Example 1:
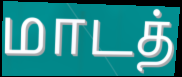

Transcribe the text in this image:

மாடத்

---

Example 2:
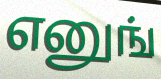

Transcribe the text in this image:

எனுங்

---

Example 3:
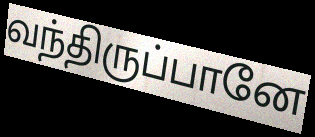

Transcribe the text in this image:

வந்திருப்பானே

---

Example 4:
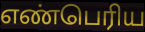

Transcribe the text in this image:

எண்பெரிய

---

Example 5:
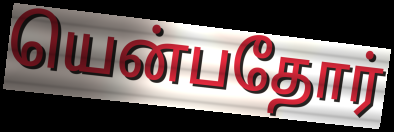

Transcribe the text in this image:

யென்பதோர்